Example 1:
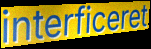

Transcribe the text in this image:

interficeret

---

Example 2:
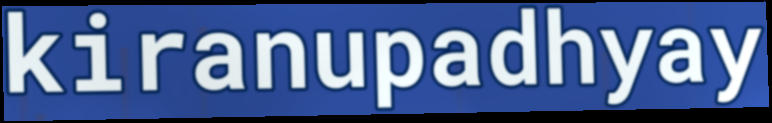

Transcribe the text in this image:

kiranupadhyay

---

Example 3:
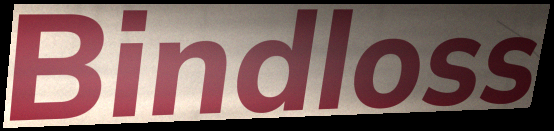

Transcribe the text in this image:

Bindloss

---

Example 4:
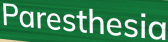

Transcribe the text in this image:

Paresthesia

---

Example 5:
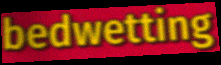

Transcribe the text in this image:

bedwetting